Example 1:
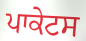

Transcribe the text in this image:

ਪਾਕੇਟਸ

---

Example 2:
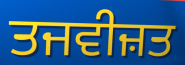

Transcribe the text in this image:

ਤਜਵੀਜ਼ਤ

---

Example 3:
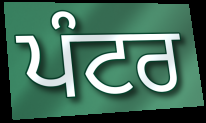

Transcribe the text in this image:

ਪੰਟਰ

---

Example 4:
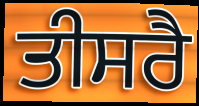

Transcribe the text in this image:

ਤੀਸਰੈ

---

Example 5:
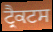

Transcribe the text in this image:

ਟ੍ਰੈਕਟਸ